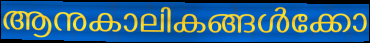
ആനുകാലികങ്ങൾക്കോ